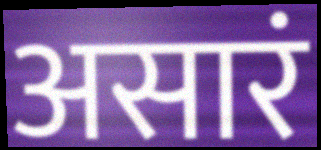
असारं